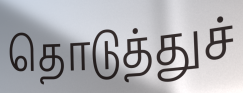
தொடுத்துச்